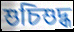
শুচিশুদ্ধ